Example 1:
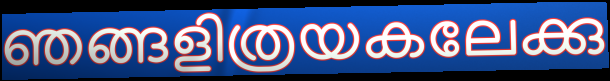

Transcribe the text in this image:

ഞങ്ങളിത്രയകലേക്കു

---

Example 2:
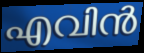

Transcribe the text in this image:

എവിൻ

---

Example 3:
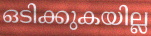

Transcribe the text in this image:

ഒടിക്കുകയില്ല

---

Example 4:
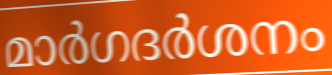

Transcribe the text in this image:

മാർഗദർശനം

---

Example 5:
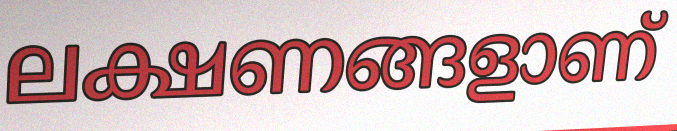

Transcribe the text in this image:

ലക്ഷണങ്ങളാണ്